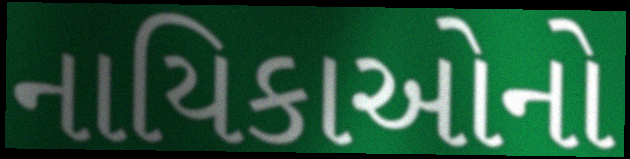
નાયિકાઓનો